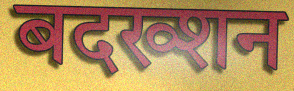
बदख्शन